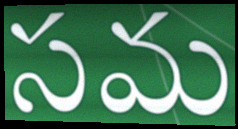
సమ